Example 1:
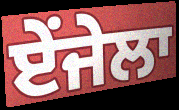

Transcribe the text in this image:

ਏਂਜੇਲਾ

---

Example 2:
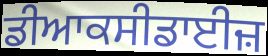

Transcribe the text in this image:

ਡੀਆਕਸੀਡਾਈਜ਼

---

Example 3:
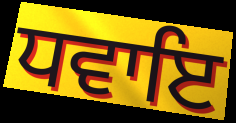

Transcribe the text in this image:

ਧਵਾਇ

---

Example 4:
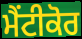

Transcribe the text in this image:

ਮੈਂਟੀਕੋਰ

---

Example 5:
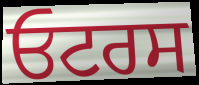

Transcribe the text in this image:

ਓਟਰਸ